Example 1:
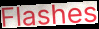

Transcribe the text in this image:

Flashes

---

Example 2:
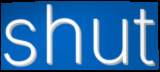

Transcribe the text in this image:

shut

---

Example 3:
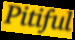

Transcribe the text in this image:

Pitiful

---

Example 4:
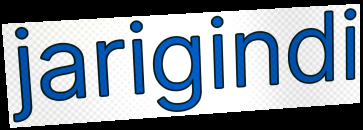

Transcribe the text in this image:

jarigindi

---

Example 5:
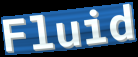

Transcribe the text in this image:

Fluid